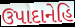
ઉપાદાનેહિ